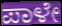
ಪಾಳೇ